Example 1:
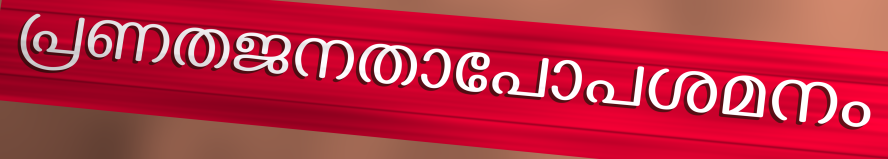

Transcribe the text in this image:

പ്രണതജനതാപോപശമനം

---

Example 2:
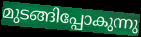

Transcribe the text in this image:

മുടങ്ങിപ്പോകുന്നു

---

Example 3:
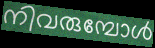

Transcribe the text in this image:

നിവരുമ്പോൾ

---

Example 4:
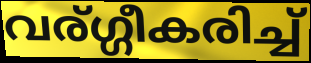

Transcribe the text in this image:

വര്ഗ്ഗീകരിച്ച്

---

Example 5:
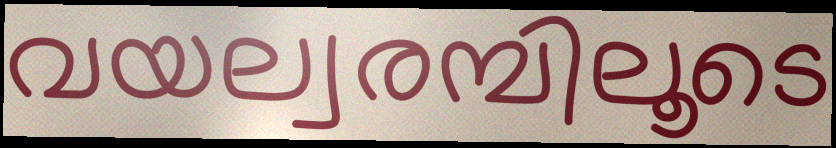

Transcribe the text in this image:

വയല്വരമ്പിലൂടെ